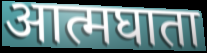
आत्मघाता